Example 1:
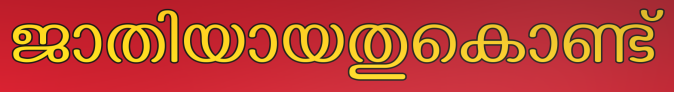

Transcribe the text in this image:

ജാതിയായതുകൊണ്ട്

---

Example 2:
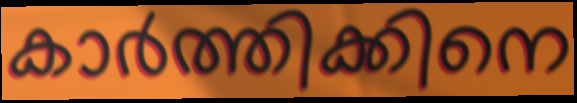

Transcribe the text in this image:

കാർത്തിക്കിനെ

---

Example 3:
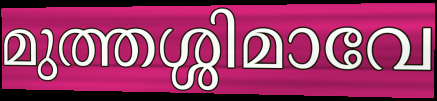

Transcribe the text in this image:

മുത്തശ്ശിമാവേ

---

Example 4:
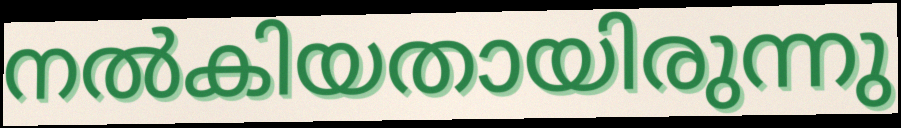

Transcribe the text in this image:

നൽകിയതായിരുന്നു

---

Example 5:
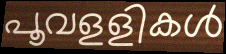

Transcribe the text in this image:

പൂവളളികൾ